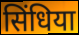
सिंधिया